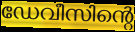
ഡേവീസിന്റെ